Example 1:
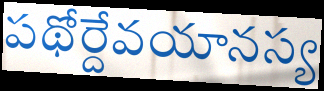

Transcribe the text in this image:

పథోర్దేవయానస్య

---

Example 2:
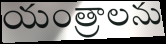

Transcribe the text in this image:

యంత్రాలను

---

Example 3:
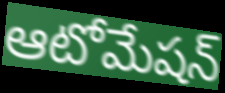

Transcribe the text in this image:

ఆటోమేషన్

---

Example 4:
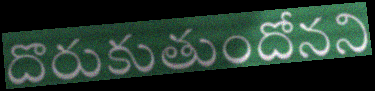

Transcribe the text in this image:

దొరుకుతుందోనని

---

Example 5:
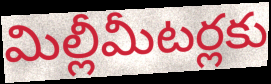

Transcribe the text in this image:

మిల్లీమీటర్లకు